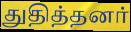
துதித்தனர்